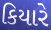
કિયારે